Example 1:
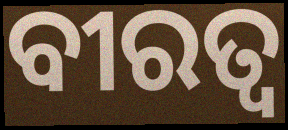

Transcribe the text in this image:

ବୀରତ୍ୱ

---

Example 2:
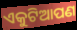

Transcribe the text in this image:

ଏକୁଟିଆପଣ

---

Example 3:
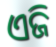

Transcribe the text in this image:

ଏଜି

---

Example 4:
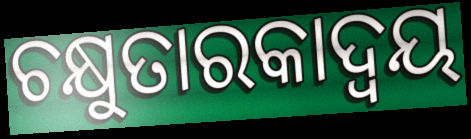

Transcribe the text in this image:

ଚକ୍ଷୁତାରକାଦ୍ଵୟ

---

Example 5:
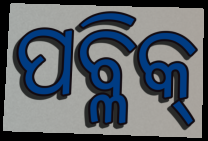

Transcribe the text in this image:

ପବ୍ଳିକ୍